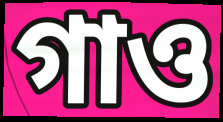
গাও